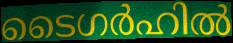
ടൈഗർഹിൽ